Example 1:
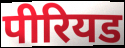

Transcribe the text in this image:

पीरियड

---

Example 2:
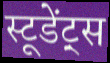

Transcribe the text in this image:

स्टूडेंट़्स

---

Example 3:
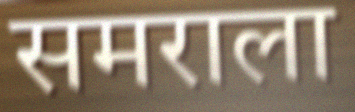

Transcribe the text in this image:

समराला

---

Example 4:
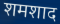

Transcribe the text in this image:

शमशाद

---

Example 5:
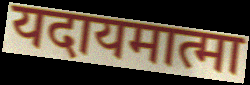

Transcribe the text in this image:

यदायमात्मा